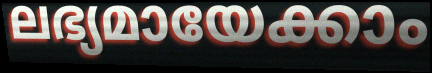
ലഭ്യമായേക്കാം